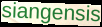
siangensis